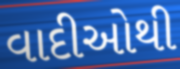
વાદીઓથી